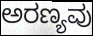
ಅರಣ್ಯವು